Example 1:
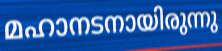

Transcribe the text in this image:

മഹാനടനായിരുന്നു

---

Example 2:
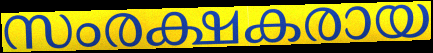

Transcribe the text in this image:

സംരക്ഷകരായ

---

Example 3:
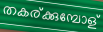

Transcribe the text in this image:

തകര്ക്കുമ്പോള്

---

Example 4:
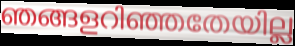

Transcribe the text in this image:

ഞങ്ങളറിഞ്ഞതേയില്ല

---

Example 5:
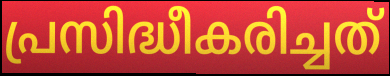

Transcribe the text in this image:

പ്രസിദ്ധീകരിച്ചത്